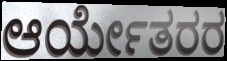
ಆರ್ಯೇತರರ